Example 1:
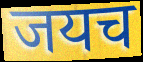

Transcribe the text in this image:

जयच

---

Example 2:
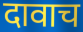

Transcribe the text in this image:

दावाच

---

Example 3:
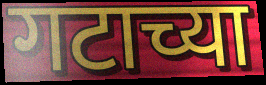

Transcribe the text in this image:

गटाच्या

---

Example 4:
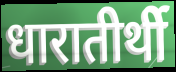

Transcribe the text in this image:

धारातीर्थी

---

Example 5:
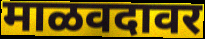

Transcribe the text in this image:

माळवदावर